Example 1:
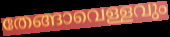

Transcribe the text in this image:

തേങ്ങാവെള്ളവും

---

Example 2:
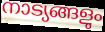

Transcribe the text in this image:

നാട്യങ്ങളും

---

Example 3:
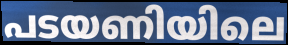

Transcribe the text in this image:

പടയണിയിലെ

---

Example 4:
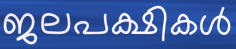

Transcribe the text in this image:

ജലപക്ഷികൾ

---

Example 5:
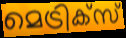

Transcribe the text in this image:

മെട്രിക്സ്